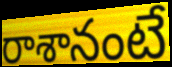
రాశానంటే